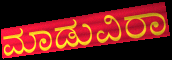
ಮಾಡುವಿರಾ